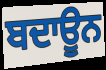
ਬਦਾਊਨ